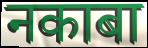
नकाबा